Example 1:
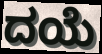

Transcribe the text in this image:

ದಯೆ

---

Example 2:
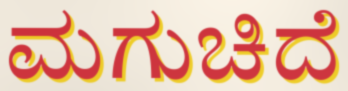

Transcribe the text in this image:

ಮಗುಚಿದೆ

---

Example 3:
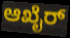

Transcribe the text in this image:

ಆಖೈರ್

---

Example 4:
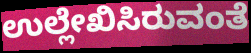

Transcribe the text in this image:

ಉಲ್ಲೇಖಿಸಿರುವಂತೆ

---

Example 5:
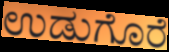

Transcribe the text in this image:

ಉಡುಗೊರೆ